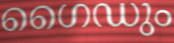
ഗൈഡും